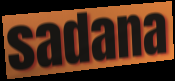
sadana